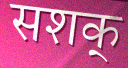
सशक्